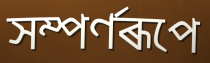
সম্পৰ্ণৰূপে